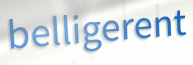
belligerent